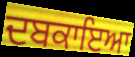
ਦਬਕਾਇਆ